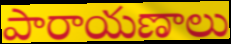
పారాయణాలు